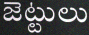
జెట్టులు